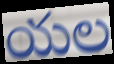
యల